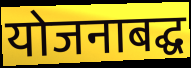
योजनाबद्घ